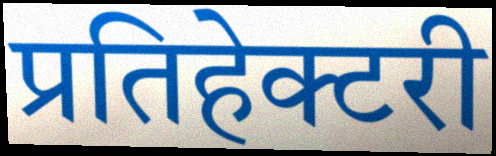
प्रतिहेक्टरी